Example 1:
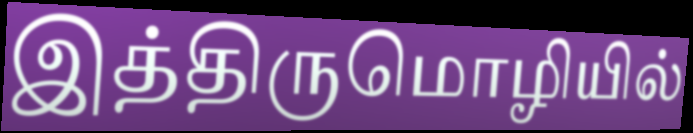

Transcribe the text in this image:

இத்திருமொழியில்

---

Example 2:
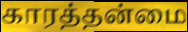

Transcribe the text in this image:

காரத்தன்மை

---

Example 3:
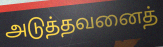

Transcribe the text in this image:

அடுத்தவனைத்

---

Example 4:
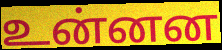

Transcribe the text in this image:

உன்னன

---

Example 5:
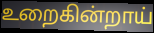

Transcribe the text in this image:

உறைகின்றாய்